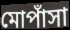
মোপাঁসা